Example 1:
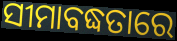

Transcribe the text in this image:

ସୀମାବଦ୍ଧତାରେ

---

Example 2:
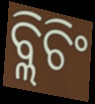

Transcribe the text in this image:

ବ୍ଲିଚିଂ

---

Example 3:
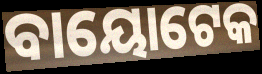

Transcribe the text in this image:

ବାୟୋଟେକ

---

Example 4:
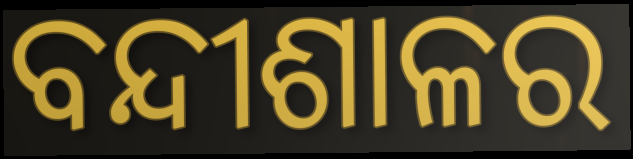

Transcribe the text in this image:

ବନ୍ଦୀଶାଳର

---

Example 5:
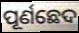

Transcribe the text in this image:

ପୂର୍ଣଛେଦ